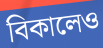
বিকালেও